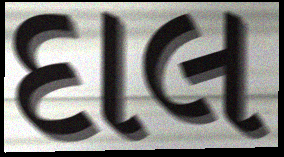
દાલ